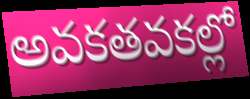
అవకతవకల్లో